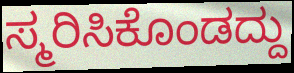
ಸ್ಮರಿಸಿಕೊಂಡದ್ದು